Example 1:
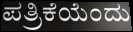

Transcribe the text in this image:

ಪತ್ರಿಕೆಯೆಂದು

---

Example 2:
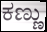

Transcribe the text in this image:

ಕಣ್ಣು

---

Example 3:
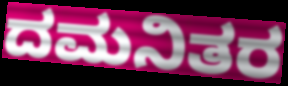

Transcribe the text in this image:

ದಮನಿತರ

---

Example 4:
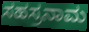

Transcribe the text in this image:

ಸಹಸ್ರನಾಮ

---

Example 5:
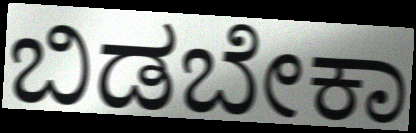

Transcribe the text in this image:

ಬಿಡಬೇಕಾ